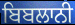
ਬਿਬਲਾਨੀ